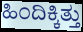
ಹಿಂದಿಕ್ಕಿತ್ತು